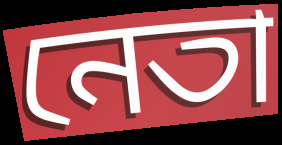
নেতা